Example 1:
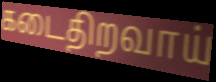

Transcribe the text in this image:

கடைதிறவாய்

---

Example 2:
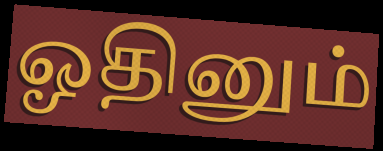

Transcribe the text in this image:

ஓதினும்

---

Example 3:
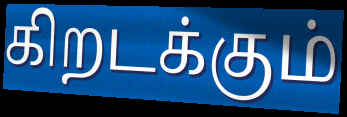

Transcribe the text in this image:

கிறடக்கும்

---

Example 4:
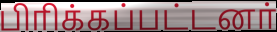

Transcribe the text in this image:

பிரிக்கப்பட்டனர்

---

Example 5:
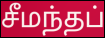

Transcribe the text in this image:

சீமந்தப்